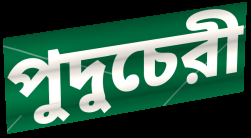
পুদুচেরী